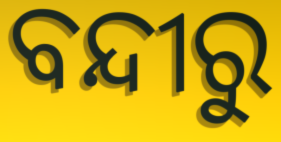
ବନ୍ଦୀରୁ